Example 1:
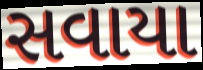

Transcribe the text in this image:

સવાયા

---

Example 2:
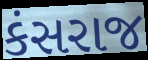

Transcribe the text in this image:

કંસરાજ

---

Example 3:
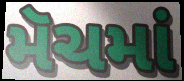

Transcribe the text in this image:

મૅચમાં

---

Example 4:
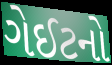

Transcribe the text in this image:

ગેઈટનો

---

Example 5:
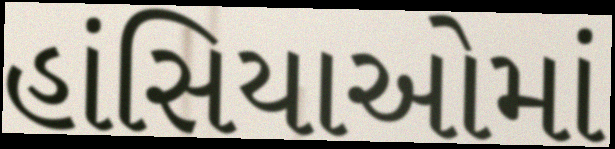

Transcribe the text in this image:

હાંસિયાઓમાં